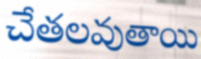
చేతలవుతాయి